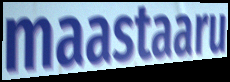
maastaaru